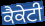
ਕੈਕੇਟੀ